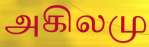
அகிலமு